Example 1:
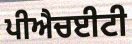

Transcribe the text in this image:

ਪੀਐਚਈਟੀ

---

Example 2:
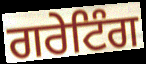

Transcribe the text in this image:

ਗਰੇਟਿੰਗ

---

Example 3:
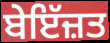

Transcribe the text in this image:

ਬੇਇੱਜ਼ਤ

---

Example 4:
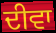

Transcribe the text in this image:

ਦੀਵਾ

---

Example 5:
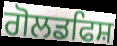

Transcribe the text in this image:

ਗੋਲਡਫਿਸ਼